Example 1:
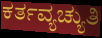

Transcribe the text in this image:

ಕರ್ತವ್ಯಚ್ಯುತಿ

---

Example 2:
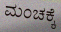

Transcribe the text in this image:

ಮಂಚಕ್ಕೆ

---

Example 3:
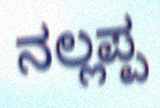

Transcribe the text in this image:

ನಲ್ಲಪ್ಪ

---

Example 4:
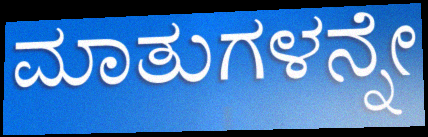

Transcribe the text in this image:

ಮಾತುಗಳನ್ನೇ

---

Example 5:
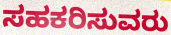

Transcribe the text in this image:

ಸಹಕರಿಸುವರು